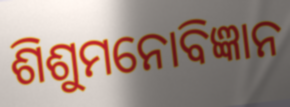
ଶିଶୁମନୋବିଜ୍ଞାନ